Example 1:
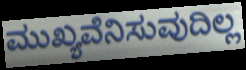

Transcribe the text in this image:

ಮುಖ್ಯವೆನಿಸುವುದಿಲ್ಲ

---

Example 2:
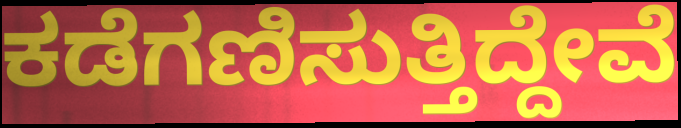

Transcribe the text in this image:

ಕಡೆಗಣಿಸುತ್ತಿದ್ದೇವೆ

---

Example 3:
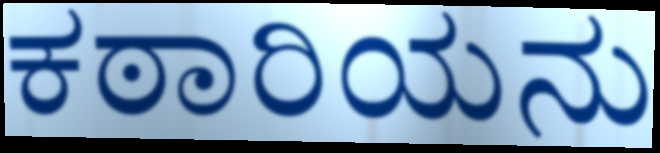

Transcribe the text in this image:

ಕಠಾರಿಯನು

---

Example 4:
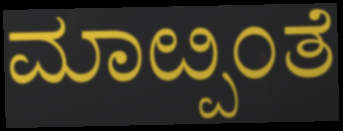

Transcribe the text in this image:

ಮಾೞ್ಪಂತೆ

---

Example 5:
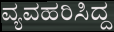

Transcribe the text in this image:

ವ್ಯವಹರಿಸಿದ್ದ